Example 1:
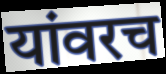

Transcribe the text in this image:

यांवरच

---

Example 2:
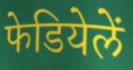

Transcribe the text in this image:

फेडियेलें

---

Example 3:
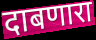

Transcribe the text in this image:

दाबणारा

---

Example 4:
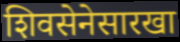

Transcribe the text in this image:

शिवसेनेसारखा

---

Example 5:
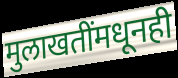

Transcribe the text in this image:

मुलाखतींमधूनही